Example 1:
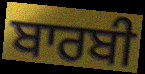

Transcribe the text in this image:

ਬਾਰਬੀ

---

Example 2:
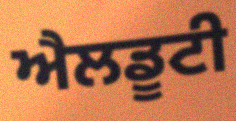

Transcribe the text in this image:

ਐਲਡੂਟੀ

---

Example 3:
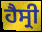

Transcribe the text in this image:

ਹੈਸ੍ਰੀ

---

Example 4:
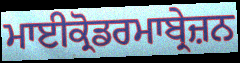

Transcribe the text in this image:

ਮਾਈਕ੍ਰੋਡਰਮਾਬ੍ਰੇਜ਼ਨ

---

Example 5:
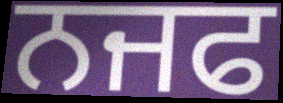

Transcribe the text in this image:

ਨਜਫ